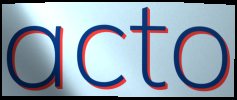
acto